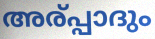
അര്പ്പാദും